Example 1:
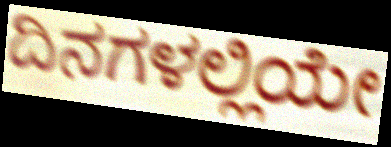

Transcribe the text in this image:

ದಿನಗಳಲ್ಲಿಯೇ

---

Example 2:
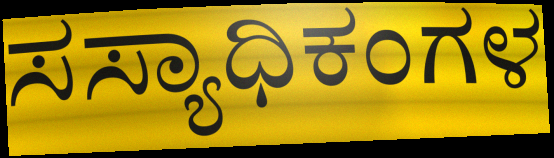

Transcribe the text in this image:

ಸಸ್ಯಾಧಿಕಂಗಳ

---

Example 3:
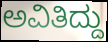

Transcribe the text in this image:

ಅವಿತಿದ್ದು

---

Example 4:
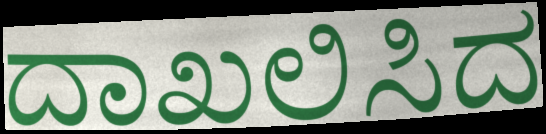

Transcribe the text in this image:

ದಾಖಲಿಸಿದ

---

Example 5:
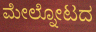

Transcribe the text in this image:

ಮೇಲ್ನೋಟದ